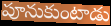
పూనుకుంటాడు